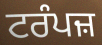
ਟਰੰਪਜ਼